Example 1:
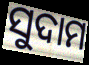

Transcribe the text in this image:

ସୁଦାମ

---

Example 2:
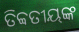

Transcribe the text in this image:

ତିବ୍ବତୀୟଙ୍କ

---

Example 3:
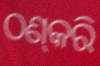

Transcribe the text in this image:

ଠଣ୍‌କରି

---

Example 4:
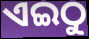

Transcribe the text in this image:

ଏଇଠୁ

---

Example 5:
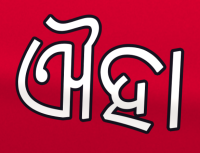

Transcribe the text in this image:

ଐହା